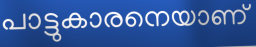
പാട്ടുകാരനെയാണ്